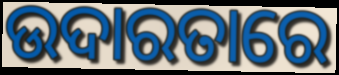
ଉଦାରତାରେ